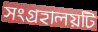
সংগ্রহালয়টি